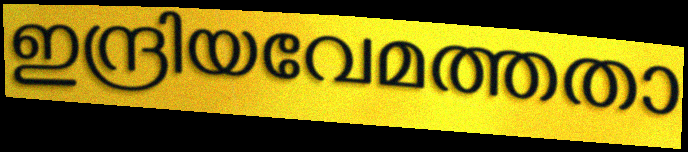
ഇന്ദ്രിയവേമത്തതാ